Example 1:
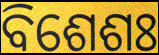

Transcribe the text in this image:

ବିଶେଶଃ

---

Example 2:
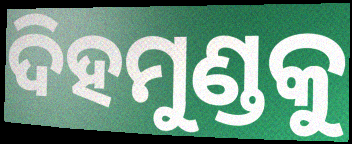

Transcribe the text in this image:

ଦିହମୁଣ୍ଡକୁ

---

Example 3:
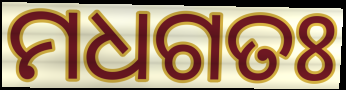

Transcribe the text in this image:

ମଧଗତଃ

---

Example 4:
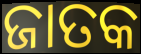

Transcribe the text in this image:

ଜାତକ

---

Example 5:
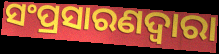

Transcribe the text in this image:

ସଂପ୍ରସାରଣଦ୍ଵାରା